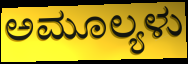
ಅಮೂಲ್ಯಳು